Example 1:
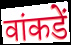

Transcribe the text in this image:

वांकडें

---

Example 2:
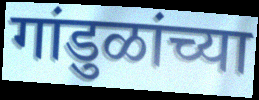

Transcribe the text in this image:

गांडुळांच्या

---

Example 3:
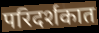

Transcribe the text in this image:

परिदर्शकात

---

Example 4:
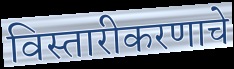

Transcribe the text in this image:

विस्तारीकरणाचे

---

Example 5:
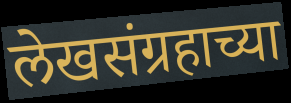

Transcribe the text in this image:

लेखसंग्रहाच्या